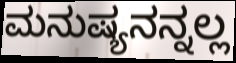
ಮನುಷ್ಯನನ್ನಲ್ಲ